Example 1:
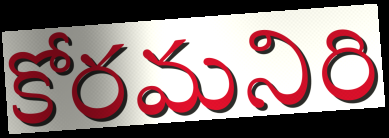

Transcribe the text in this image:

కోరమనిరి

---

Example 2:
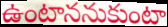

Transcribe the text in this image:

ఉంటాననుకుంటా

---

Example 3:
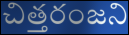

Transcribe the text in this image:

చిత్తరంజని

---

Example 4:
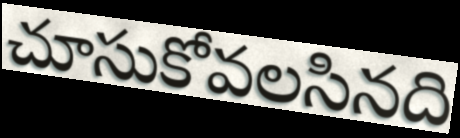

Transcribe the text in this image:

చూసుకోవలసినది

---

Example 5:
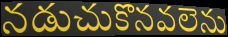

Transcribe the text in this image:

నడుచుకొనవలెను